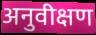
अनुवीक्षण